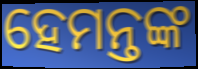
ହେମନ୍ତଙ୍କ